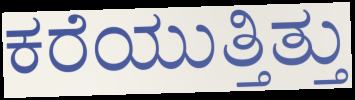
ಕರೆಯುತ್ತಿತ್ತು